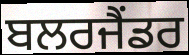
ਬਲਰਜੈਂਡਰ